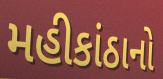
મહીકાંઠાનો